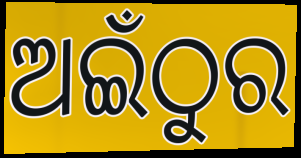
ଅଇଁଠୁର